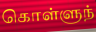
கொள்ளுந்